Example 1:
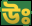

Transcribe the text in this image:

উঃ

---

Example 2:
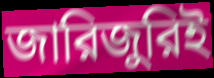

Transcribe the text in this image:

জারিজুরিই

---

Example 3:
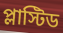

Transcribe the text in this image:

প্লাস্টিড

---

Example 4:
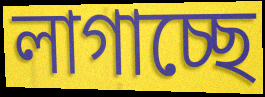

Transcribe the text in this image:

লাগাচ্ছে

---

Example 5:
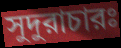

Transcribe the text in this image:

সুদুরাচারঃ